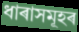
ধাৰাসমূহৰ